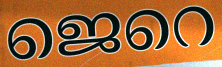
ജെറെ